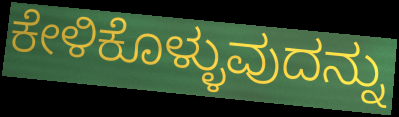
ಕೇಳಿಕೊಳ್ಳುವುದನ್ನು